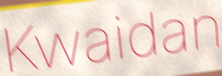
Kwaidan